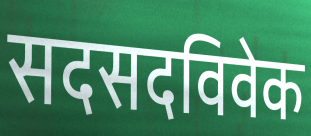
सदसदविवेक